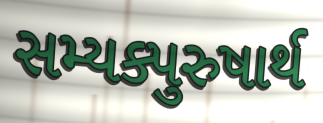
સમ્યક્પુરુષાર્થ